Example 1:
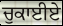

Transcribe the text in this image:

ਚੁਕਾਈਏ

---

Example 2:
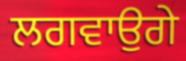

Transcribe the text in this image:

ਲਗਵਾਉਗੇ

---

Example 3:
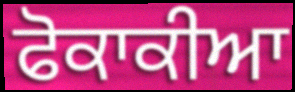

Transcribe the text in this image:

ਫੋਕਾਕੀਆ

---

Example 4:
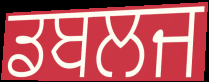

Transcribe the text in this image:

ਡਬਲਜ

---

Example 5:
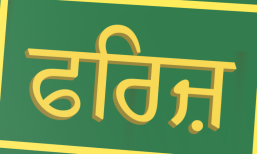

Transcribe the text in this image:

ਫਰਿਜ਼